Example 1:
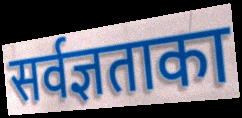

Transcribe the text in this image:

सर्वज्ञताका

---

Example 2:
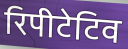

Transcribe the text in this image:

रिपीटेटिव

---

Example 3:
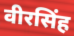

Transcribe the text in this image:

वीरसिंह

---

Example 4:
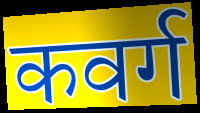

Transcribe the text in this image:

कवर्ग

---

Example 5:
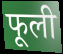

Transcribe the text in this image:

फूली